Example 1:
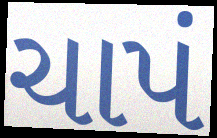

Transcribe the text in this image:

ચાપં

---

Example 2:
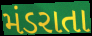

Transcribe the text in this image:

મંડરાતા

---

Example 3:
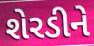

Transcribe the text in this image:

શેરડીને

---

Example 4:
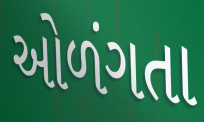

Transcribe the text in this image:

ઓળંગતા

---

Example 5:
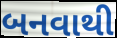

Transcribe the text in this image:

બનવાથી